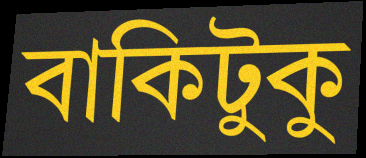
বাকিটুকু